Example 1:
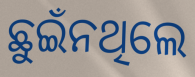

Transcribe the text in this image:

ଛୁଇଁନଥିଲେ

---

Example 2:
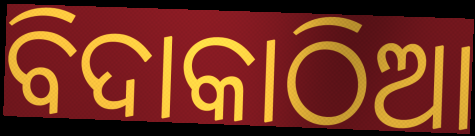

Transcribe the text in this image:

ବିଦାକାଠିଆ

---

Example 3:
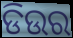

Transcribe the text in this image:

ଡିଉର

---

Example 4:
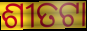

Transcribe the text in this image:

ଶୀତଟା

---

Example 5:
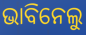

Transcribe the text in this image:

ଭାବିନେଲୁ